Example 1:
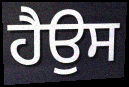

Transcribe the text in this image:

ਹੈਉਸ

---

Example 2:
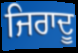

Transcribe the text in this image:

ਜਿਰਾਦੂ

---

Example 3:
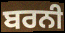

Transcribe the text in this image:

ਬਰਨੀ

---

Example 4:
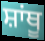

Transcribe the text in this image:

ਸ਼ਾਂਥੂ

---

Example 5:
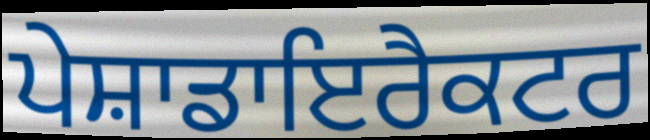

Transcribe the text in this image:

ਪੇਸ਼ਾਡਾਇਰੈਕਟਰ